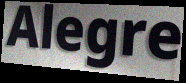
Alegre